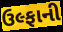
ઉલ્ફાની